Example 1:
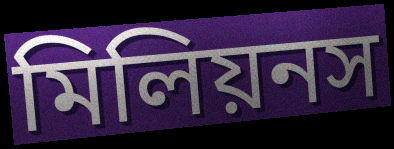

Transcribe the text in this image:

মিলিয়নস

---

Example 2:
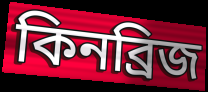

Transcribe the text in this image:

কিনব্রিজ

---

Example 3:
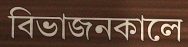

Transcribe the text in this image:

বিভাজনকালে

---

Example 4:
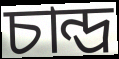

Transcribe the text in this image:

চান্দ্র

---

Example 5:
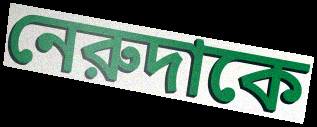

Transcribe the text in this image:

নেরুদাকে